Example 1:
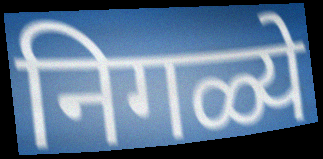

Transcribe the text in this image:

निगळ्ये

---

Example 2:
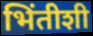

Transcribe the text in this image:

भिंतीशी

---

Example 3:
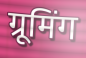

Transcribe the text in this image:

ग्रूमिंग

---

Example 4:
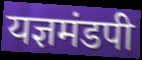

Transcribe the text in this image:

यज्ञमंडपी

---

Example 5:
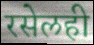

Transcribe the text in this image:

रसेलही